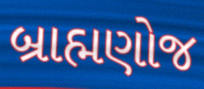
બ્રાહ્મણોજ